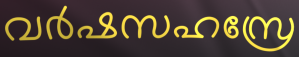
വർഷസഹസ്രേ